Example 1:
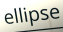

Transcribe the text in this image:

ellipse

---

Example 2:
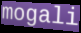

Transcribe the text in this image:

mogali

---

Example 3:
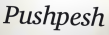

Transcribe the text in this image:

Pushpesh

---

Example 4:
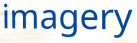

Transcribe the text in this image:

imagery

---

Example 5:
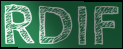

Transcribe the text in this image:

RDIF